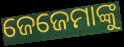
ଜେଜେମାଙ୍କୁ